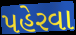
પહેરવા